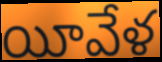
యీవేళ